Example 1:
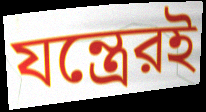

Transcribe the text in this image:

যন্ত্রেরই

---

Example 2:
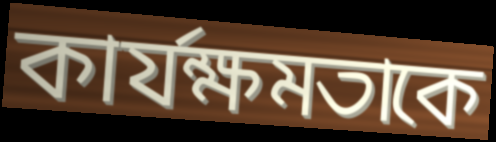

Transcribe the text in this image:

কার্যক্ষমতাকে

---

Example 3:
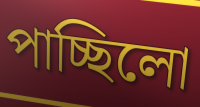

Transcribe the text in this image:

পাচ্ছিলো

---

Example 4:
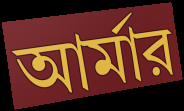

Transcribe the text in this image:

আর্মার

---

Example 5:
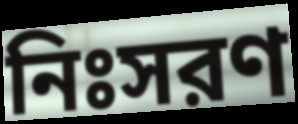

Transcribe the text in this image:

নিঃসরণ